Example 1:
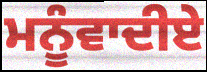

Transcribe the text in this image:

ਮਨੂੰਵਾਦੀਏ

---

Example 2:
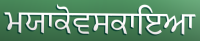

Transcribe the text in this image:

ਮਯਾਕੋਵਸਕਾਇਆ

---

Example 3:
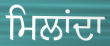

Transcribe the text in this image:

ਮਿਲਾਂਦਾ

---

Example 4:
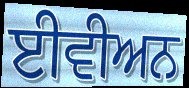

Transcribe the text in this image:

ਈਵੀਅਨ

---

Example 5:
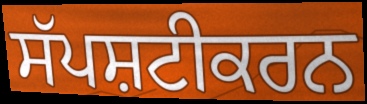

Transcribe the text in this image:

ਸੱਪਸ਼ਟੀਕਰਨ